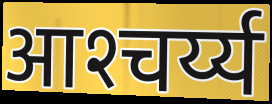
आश्चर्य्य